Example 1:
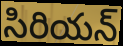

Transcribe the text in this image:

సిరియన్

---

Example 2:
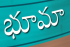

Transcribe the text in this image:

భూమా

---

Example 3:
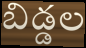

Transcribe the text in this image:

బిడ్డల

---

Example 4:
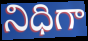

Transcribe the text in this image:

నిధిగా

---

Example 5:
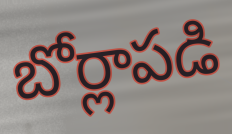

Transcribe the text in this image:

బోర్లాపడి